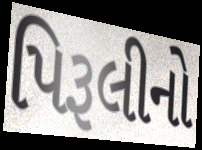
પિરૂલીનો